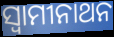
ସ୍ବାମୀନାଥନ